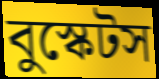
বুস্কেটস